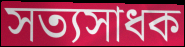
সত্যসাধক